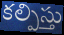
కల్పిస్తు